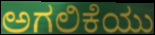
ಅಗಲಿಕೆಯು